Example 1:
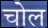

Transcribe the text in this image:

चोल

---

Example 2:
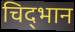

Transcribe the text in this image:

चिद्भान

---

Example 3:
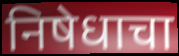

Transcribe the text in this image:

निषेधाचा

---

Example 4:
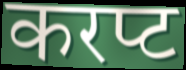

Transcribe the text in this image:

करप्ट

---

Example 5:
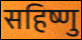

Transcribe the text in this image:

सहिष्णु